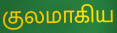
குலமாகிய